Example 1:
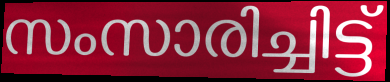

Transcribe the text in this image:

സംസാരിച്ചിട്ട്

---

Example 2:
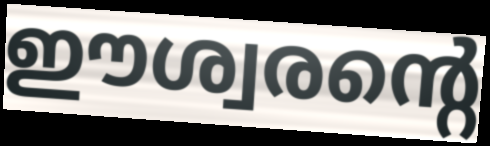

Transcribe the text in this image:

ഈശ്വരന്റെ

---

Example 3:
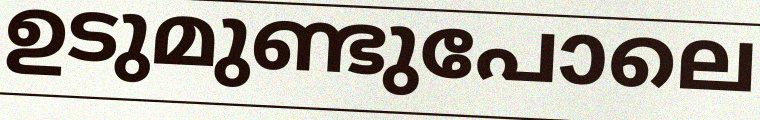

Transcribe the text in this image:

ഉടുമുണ്ടുപോലെ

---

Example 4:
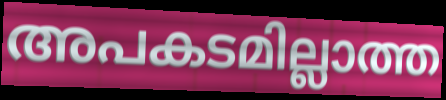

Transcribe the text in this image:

അപകടമില്ലാത്ത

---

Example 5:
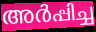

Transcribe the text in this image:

അർപ്പിച്ച